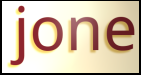
jone